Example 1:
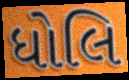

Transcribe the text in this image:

ધોલિ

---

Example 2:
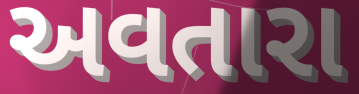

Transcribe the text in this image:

અવતારા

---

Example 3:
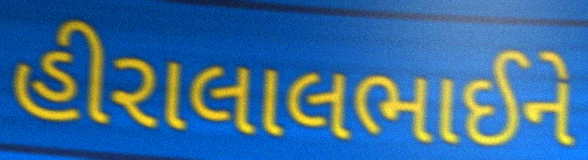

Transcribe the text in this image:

હીરાલાલભાઈને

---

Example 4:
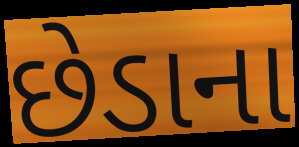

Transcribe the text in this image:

છેડાના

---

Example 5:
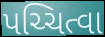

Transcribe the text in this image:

પચ્ચિત્વા